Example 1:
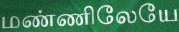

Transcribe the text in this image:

மண்ணிலேயே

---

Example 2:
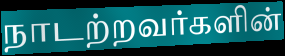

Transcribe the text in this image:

நாடற்றவர்களின்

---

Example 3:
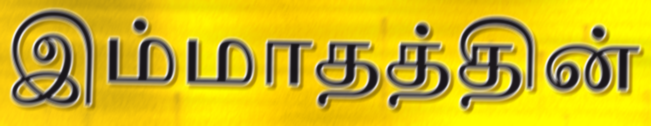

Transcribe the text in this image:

இம்மாதத்தின்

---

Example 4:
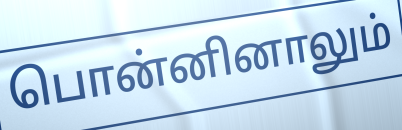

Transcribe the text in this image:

பொன்னினாலும்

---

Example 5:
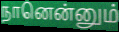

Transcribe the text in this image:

நானென்னும்